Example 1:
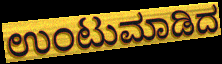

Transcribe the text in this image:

ಉಂಟುಮಾಡಿದ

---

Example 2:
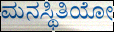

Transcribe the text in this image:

ಮನಸ್ಥಿತಿಯೋ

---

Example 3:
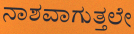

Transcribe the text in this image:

ನಾಶವಾಗುತ್ತಲೇ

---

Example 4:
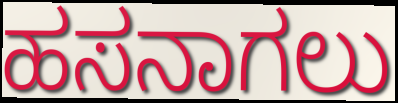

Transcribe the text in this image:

ಹಸನಾಗಲು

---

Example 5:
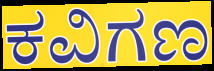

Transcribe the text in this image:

ಕವಿಗಣ